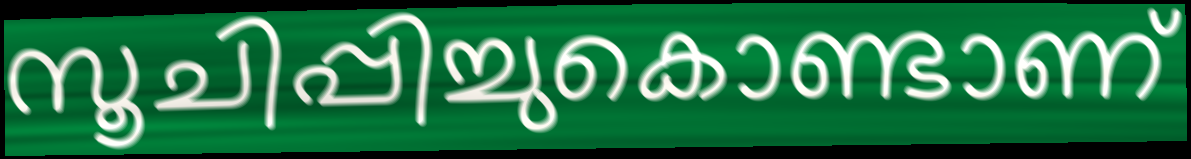
സൂചിപ്പിച്ചുകൊണ്ടാണ്